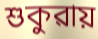
শুকুৱায়